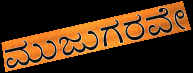
ಮುಜುಗರವೇ